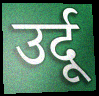
उर्दू